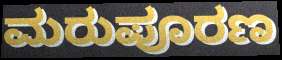
ಮರುಪೂರಣ